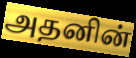
அதனின்